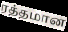
ரத்தமான